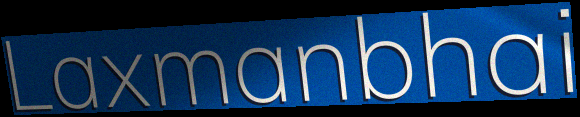
Laxmanbhai